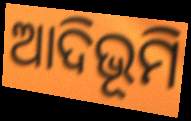
ଆଦିଭୂମି